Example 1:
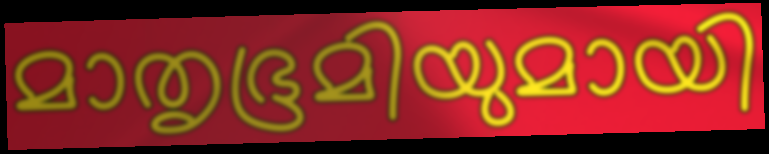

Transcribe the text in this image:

മാതൃഭൂമിയുമായി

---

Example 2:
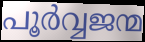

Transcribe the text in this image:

പൂർവ്വജന്മ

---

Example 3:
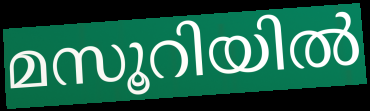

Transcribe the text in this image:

മസൂറിയിൽ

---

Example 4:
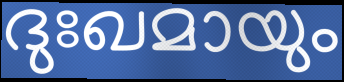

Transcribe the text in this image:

ദുഃഖമായും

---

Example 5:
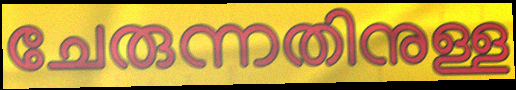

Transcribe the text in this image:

ചേരുന്നതിനുള്ള